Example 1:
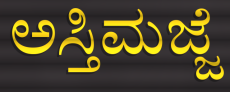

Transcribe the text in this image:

ಅಸ್ತಿಮಜ್ಜೆ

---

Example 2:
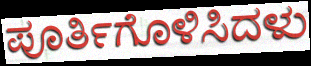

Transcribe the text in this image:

ಪೂರ್ತಿಗೊಳಿಸಿದಳು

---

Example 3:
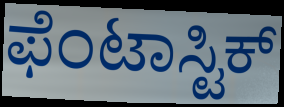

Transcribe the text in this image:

ಫೆಂಟಾಸ್ಟಿಕ್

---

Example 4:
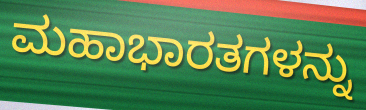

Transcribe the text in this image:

ಮಹಾಭಾರತಗಳನ್ನು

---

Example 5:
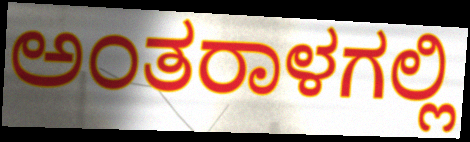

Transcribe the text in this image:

ಅಂತರಾಳಗಲ್ಲಿ